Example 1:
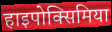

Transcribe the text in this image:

हाइपोक्सिमिया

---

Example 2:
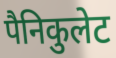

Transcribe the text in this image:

पैनिकुलेट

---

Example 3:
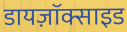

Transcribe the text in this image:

डायज़ॉक्साइड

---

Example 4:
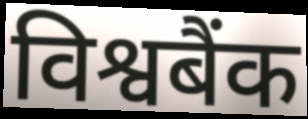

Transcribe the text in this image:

विश्वबैंक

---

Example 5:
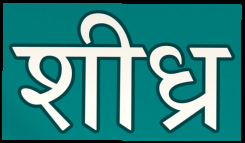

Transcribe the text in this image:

शीध्र